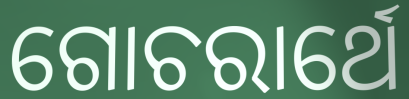
ଗୋଚରାର୍ଥେ